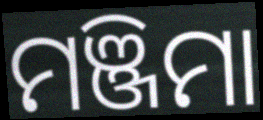
ମଞ୍ଜିମା